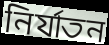
নির্যাতন